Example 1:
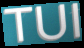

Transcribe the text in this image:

TUI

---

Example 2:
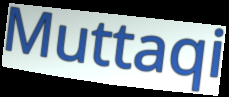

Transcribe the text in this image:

Muttaqi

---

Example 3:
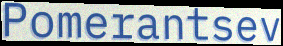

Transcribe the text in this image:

Pomerantsev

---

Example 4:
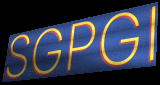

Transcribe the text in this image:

SGPGI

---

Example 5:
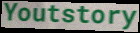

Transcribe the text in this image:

Youtstory